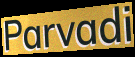
Parvadi